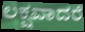
ಲಕ್ಷವಾದರೆ